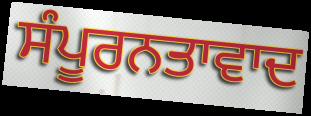
ਸੰਪੂਰਨਤਾਵਾਦ